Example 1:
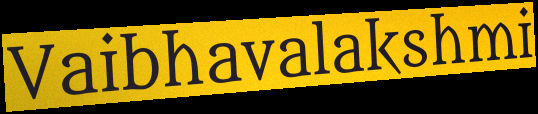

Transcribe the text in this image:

Vaibhavalakshmi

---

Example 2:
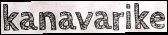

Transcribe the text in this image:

kanavarike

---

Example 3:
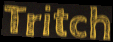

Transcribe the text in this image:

Tritch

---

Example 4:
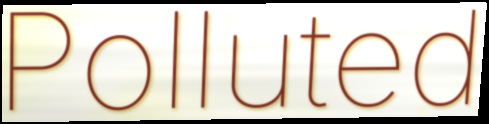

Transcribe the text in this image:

Polluted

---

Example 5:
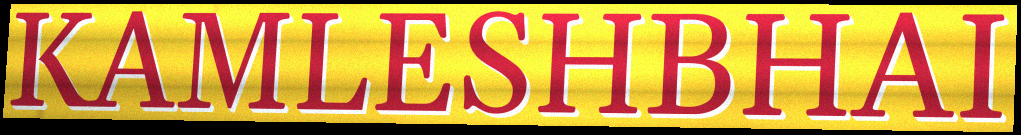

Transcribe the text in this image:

KAMLESHBHAI